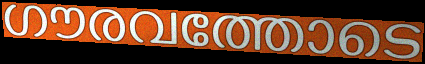
ഗൗരവത്തോടെ